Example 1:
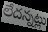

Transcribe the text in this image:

లేదన్నట్లు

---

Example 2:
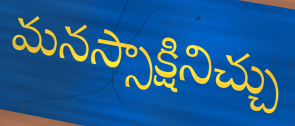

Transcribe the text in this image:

మనస్సాక్షినిచ్చు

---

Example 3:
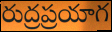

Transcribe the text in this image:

రుద్రప్రయాగ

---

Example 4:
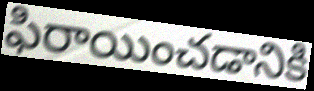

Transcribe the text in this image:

ఫిరాయించడానికి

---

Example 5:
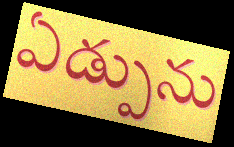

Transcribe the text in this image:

ఏడ్పును